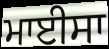
ਮਾਈਸਾ